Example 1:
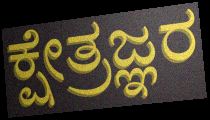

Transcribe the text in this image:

ಕ್ಷೇತ್ರಜ್ಞರ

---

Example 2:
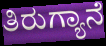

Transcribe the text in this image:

ತಿರುಗ್ಯಾನೆ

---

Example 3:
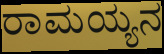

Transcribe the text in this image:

ರಾಮಯ್ಯನ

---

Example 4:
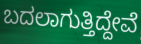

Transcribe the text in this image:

ಬದಲಾಗುತ್ತಿದ್ದೇವೆ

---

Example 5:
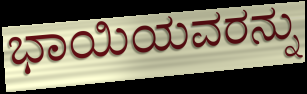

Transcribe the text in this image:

ಭಾಯಿಯವರನ್ನು